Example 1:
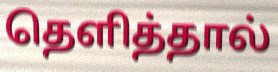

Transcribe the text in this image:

தெளித்தால்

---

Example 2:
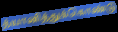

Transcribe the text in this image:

த்யானித்துக்கொண்டு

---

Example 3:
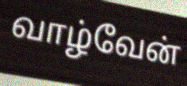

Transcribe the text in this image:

வாழ்வேன்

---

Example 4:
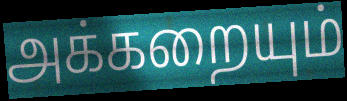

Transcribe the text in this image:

அக்கறையும்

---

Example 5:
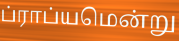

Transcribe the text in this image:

ப்ராப்யமென்று